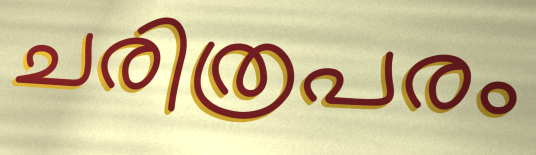
ചരിത്രപരം